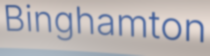
Binghamton